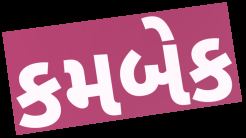
કમબેક